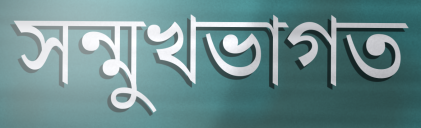
সন্মুখভাগত